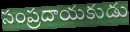
సంప్రదాయకుడు